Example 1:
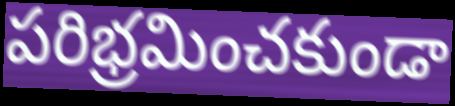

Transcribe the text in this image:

పరిభ్రమించకుండా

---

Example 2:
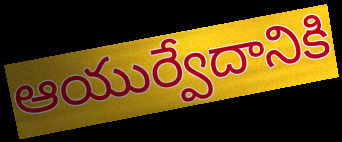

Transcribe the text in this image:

ఆయుర్వేదానికి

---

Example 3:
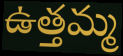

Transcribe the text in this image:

ఉత్తమ్మ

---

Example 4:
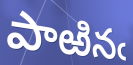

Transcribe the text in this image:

పాఱినఁ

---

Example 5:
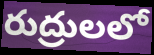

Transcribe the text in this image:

రుద్రులలో